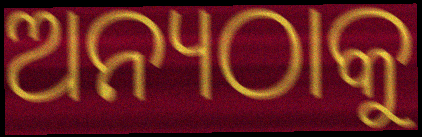
ଅନ୍ୟଠାକୁ